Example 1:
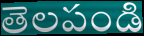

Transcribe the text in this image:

తెలపండి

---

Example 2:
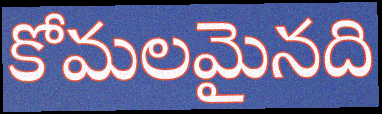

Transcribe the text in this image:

కోమలమైనది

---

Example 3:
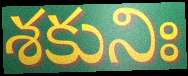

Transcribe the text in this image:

శకునిః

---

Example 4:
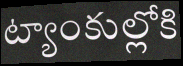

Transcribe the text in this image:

ట్యాంకుల్లోకి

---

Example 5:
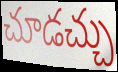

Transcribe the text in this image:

చూడచ్చు